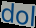
dol